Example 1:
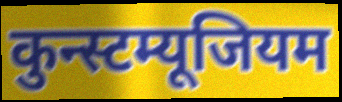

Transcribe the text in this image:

कुन्स्टम्यूजियम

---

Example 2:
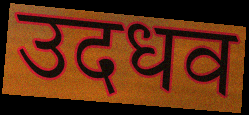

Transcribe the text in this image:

उदधव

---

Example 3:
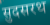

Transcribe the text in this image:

सुदसरथ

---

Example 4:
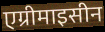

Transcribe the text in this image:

एग्रीमाइसीन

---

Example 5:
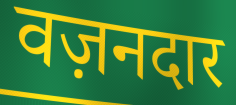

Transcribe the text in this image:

वज़नदार